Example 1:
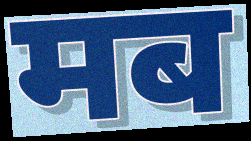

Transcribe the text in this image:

मब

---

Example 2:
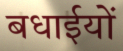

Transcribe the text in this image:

बधाईयों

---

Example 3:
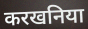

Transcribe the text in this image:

करखनिया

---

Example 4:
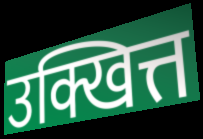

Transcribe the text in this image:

उक्खित्त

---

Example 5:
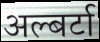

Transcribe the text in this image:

अल्बर्टा